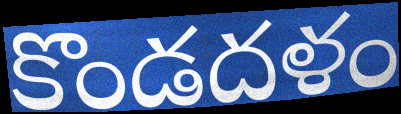
కొండదళం